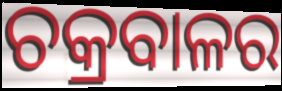
ଚକ୍ରବାଳର